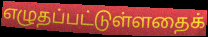
எழுதப்பட்டுள்ளதைக்